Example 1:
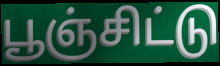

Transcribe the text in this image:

பூஞ்சிட்டு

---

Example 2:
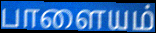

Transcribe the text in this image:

பாளையம்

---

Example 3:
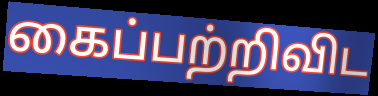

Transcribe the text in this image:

கைப்பற்றிவிட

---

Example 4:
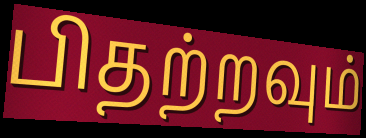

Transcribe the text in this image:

பிதற்றவும்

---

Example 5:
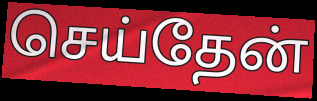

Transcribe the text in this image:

செய்தேன்